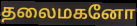
தலைமகனோ